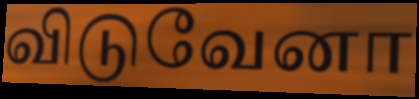
விடுவேனா